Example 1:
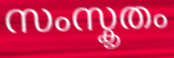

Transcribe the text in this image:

സംസ്കൃതം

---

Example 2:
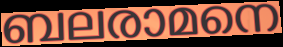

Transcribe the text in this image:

ബലരാമനെ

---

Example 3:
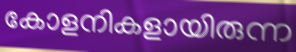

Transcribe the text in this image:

കോളനികളായിരുന്ന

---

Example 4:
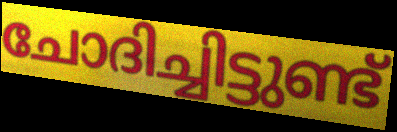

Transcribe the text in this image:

ചോദിച്ചിട്ടുണ്ട്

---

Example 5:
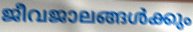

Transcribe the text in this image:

ജീവജാലങ്ങൾക്കും